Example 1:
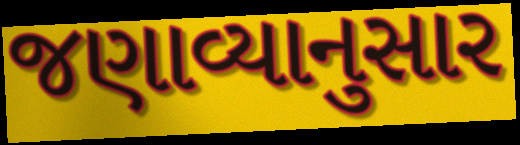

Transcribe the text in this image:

જણાવ્યાનુસાર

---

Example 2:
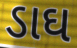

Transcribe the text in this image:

ડાઘ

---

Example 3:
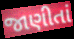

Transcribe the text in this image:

જાણીતાં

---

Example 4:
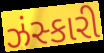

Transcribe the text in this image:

ઝંસ્કારી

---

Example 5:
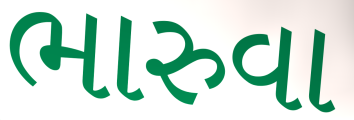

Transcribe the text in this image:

ભારુવા